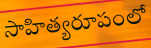
సాహిత్యరూపంలో